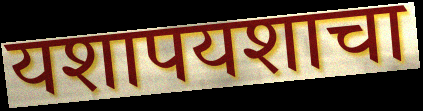
यशापयशाचा